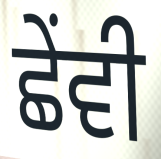
ਛੇੰਵੀ